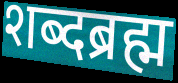
शब्दब्रह्म